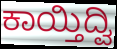
ಕಾಯ್ತಿದ್ವಿ